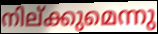
നില്ക്കുമെന്നു